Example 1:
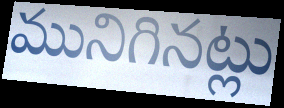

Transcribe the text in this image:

మునిగినట్లు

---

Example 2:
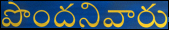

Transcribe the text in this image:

పొందనివారు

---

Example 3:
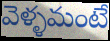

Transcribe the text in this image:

వెళ్ళమంటే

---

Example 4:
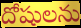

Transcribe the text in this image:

దోషులను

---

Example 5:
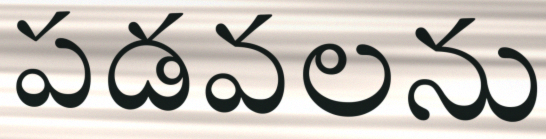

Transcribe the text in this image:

పడవలను